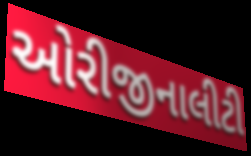
ઓરીજીનાલીટી